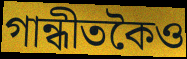
গান্ধীতকৈও